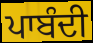
ਪਾਬੰਦੀ